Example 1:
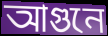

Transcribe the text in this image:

আগুনে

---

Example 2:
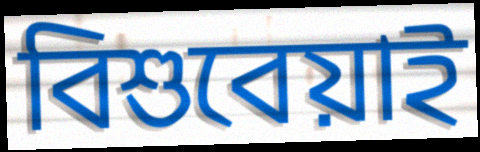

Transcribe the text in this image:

বিশুবেয়াই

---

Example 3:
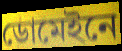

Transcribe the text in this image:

ডোমেইনে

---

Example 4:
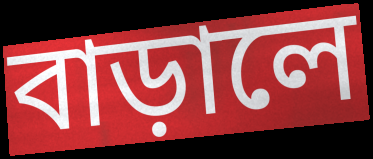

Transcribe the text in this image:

বাড়ালে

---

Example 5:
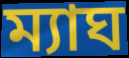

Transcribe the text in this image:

ম্যাঘ